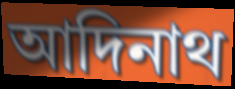
আদিনাথ